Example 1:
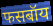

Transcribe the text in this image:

फसबॉय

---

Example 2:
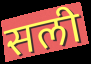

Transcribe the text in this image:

सली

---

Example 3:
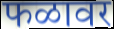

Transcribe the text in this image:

फळावर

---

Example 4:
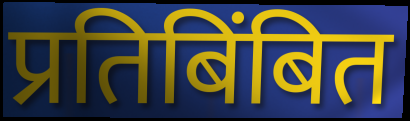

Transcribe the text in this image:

प्रतिबिंबित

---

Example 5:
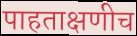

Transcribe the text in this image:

पाहताक्षणीच